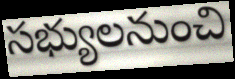
సభ్యులనుంచి